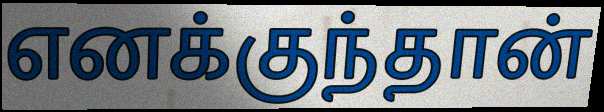
எனக்குந்தான்